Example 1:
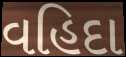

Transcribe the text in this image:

વહિદા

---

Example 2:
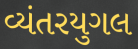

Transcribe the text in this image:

વ્યંતરયુગલ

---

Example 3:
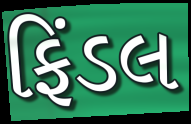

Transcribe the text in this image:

ફિંડલ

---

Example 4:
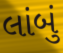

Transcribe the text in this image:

લાંબું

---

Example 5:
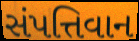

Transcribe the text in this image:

સંપત્તિવાન